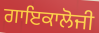
ਗਾਇਕਾਲੋਜੀ